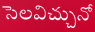
సెలవిచ్చునో